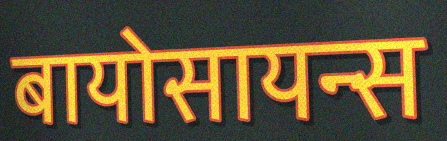
बायोसायन्स